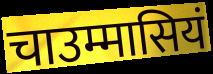
चाउम्मासियं